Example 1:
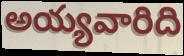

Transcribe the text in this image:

అయ్యవారిది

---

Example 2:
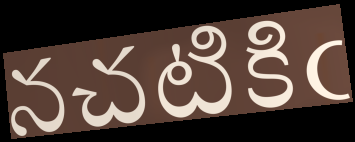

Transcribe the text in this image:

నచటికిఁ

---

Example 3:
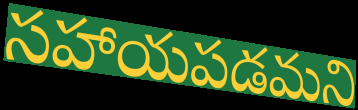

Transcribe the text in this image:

సహాయపడమని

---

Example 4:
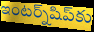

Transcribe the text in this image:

ఇంటర్న్‌షిప్‌కు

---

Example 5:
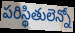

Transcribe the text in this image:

పరిస్థితులెన్నో